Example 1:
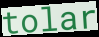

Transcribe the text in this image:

tolar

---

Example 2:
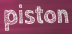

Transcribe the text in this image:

piston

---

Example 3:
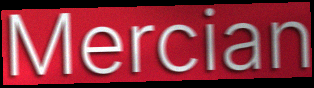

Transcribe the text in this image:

Mercian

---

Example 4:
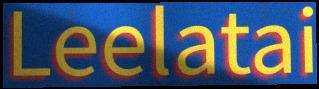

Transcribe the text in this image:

Leelatai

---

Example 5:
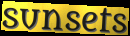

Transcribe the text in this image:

sunsets